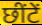
छींटें